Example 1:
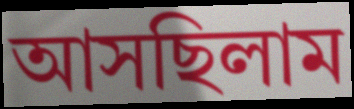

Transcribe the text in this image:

আসছিলাম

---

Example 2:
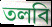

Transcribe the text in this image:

তলবি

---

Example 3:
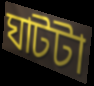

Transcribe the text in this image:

ঘাটটা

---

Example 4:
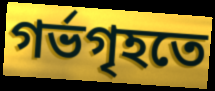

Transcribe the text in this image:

গর্ভগৃহতে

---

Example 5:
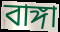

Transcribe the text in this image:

বাঙ্গা